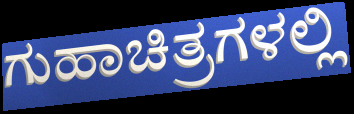
ಗುಹಾಚಿತ್ರಗಳಲ್ಲಿ